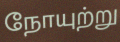
நோயுற்று